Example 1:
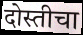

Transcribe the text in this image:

दोस्तीचा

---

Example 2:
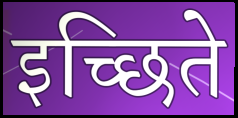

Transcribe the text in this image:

इच्छिते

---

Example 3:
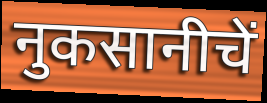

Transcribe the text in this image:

नुकसानीचें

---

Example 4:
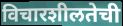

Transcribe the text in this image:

विचारशीलतेची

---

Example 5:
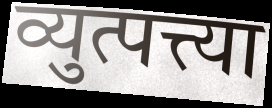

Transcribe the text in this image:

व्युत्पत्त्या